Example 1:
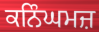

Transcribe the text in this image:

ਕਨਿੰਘਮਜ਼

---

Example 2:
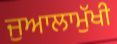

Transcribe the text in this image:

ਜੁਆਲਾਮੁੱਖੀ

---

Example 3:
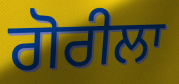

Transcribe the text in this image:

ਗੋਰੀਲਾ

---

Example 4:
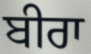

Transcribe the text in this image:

ਬੀਰਾ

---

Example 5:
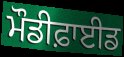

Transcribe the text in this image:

ਮੌਡੀਫ਼ਾਈਡ